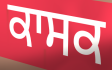
ਕਾਸਕ